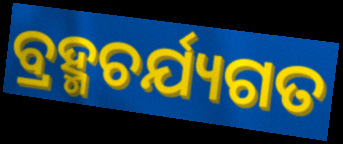
ବ୍ରହ୍ମଚର୍ଯ୍ୟଗତ